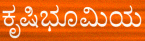
ಕೃಷಿಭೂಮಿಯ